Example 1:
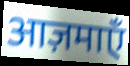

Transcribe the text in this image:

आज़माएँ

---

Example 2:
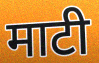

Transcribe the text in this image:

माटी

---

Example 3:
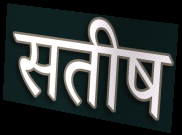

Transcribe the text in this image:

सतीष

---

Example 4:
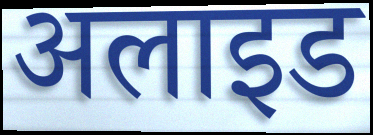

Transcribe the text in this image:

अलाइड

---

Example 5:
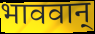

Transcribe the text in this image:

भाववान्